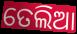
ତେଲିଆ